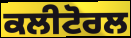
ਕਲੀਟੋਰਲ